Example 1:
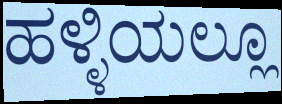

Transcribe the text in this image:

ಹಳ್ಳಿಯಲ್ಲೂ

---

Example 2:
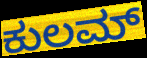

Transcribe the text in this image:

ಕುಲಮ್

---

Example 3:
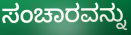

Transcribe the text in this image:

ಸಂಚಾರವನ್ನು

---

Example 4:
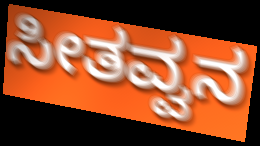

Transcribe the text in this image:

ಸೀತವ್ವನ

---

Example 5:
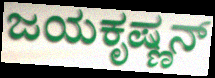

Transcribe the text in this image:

ಜಯಕೃಷ್ಣನ್